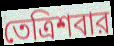
তেত্রিশবার